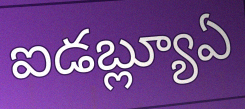
ఐడబ్ల్యూఏ